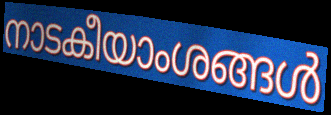
നാടകീയാംശങ്ങൾ